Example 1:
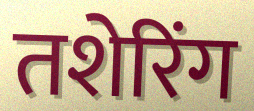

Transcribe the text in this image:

तशेरिंग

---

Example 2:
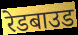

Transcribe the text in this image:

रेडबाउड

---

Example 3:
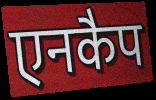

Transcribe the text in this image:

एनकैप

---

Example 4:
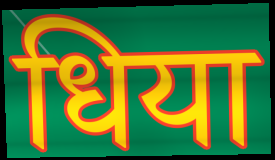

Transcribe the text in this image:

धिया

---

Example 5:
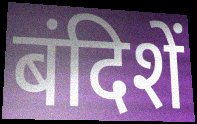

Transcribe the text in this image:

बंदिशें